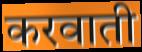
करवाती